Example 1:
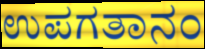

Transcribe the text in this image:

ಉಪಗತಾನಂ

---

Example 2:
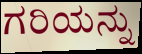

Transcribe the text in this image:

ಗರಿಯನ್ನು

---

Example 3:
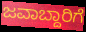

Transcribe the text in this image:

ಜವಾಬ್ದಾರಿಗೆ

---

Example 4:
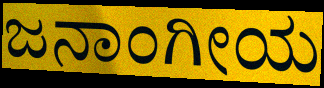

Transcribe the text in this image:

ಜನಾಂಗೀಯ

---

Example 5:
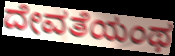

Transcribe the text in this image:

ದೇವತೆಯಂಥ